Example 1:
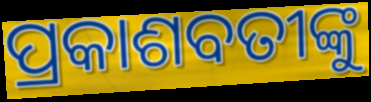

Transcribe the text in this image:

ପ୍ରକାଶବତୀଙ୍କୁ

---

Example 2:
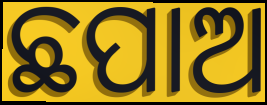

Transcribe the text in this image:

ଛପାଅ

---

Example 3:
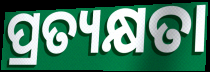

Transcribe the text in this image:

ପ୍ରତ୍ୟକ୍ଷତା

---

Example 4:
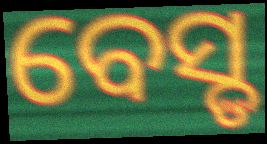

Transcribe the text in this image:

ବେସ୍ଡ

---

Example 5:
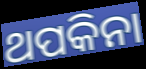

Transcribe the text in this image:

ଥପକିନା